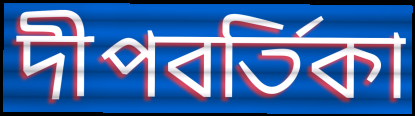
দীপবর্তিকা